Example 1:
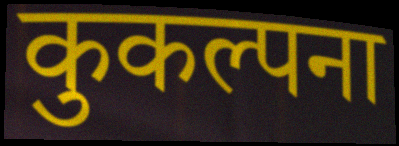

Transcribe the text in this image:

कुकल्पना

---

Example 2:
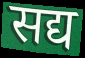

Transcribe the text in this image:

सद्य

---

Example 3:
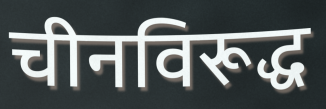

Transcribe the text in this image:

चीनविरूद्ध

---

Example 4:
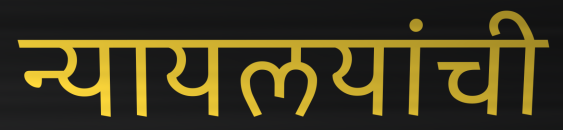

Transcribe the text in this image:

न्यायलयांची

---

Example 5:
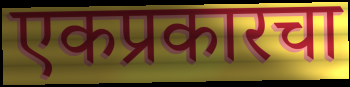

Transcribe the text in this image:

एकप्रकारचा